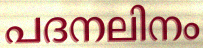
പദനലിനം